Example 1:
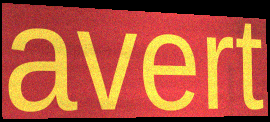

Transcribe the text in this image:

avert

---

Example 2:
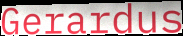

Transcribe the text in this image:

Gerardus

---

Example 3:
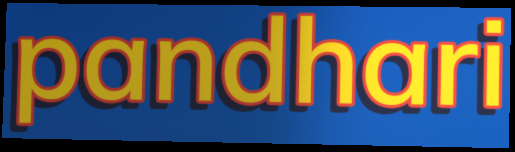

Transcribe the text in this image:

pandhari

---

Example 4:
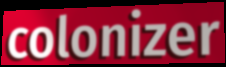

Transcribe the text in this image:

colonizer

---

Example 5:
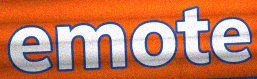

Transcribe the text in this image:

emote